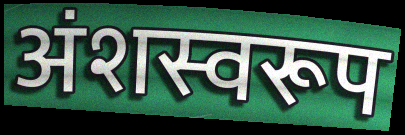
अंशस्वरूप